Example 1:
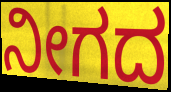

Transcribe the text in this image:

ನೀಗದ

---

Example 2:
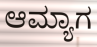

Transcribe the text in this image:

ಆಮ್ಯಾಗ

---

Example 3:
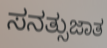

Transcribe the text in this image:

ಸನತ್ಸುಜಾತ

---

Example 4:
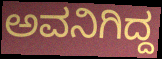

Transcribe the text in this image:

ಅವನಿಗಿದ್ದ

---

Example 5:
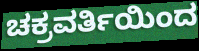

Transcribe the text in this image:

ಚಕ್ರವರ್ತಿಯಿಂದ